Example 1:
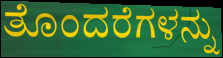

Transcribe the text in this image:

ತೊಂದರೆಗಳನ್ನು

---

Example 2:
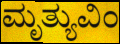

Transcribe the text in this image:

ಮೃತ್ಯುವಿಂ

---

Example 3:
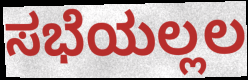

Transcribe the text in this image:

ಸಭೆಯಲ್ಲಲ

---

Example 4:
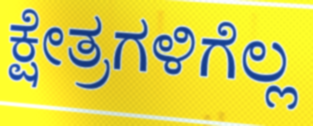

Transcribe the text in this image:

ಕ್ಷೇತ್ರಗಳಿಗೆಲ್ಲ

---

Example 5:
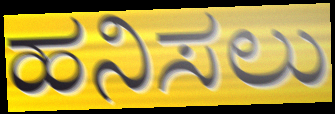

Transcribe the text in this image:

ಹನಿಸಲು